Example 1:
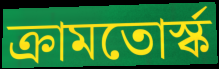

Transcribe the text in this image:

ক্রামতোর্স্ক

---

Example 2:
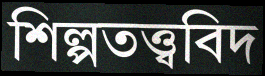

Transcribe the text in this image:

শিল্পতত্ত্ববিদ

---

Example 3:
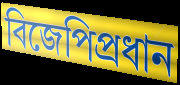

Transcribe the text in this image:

বিজেপিপ্রধান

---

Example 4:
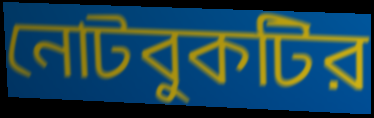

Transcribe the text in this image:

নোটবুকটির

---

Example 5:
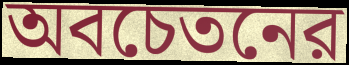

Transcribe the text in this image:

অবচেতনের